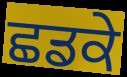
ਛਡਕੇ